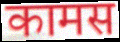
कामस